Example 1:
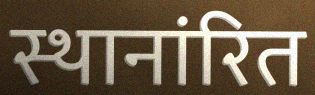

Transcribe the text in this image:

स्थानांरित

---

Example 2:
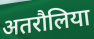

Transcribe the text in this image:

अतरौलिया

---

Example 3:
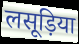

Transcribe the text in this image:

लसूड़िया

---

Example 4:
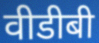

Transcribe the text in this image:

वीडीबी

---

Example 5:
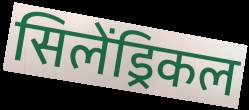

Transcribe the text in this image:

सिलेंड्रिकल